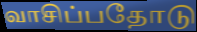
வாசிப்பதோடு